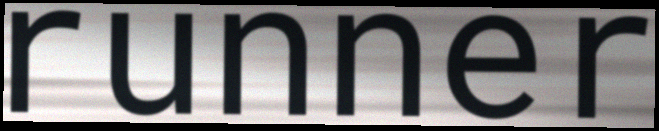
runner